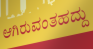
ಆಗಿರುವಂತಹದ್ದು